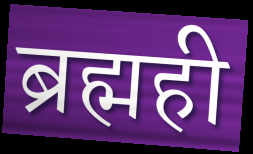
ब्रह्मही